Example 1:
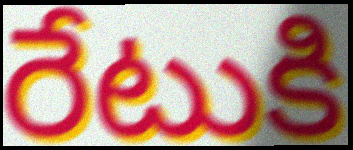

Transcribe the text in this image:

రేటుకి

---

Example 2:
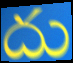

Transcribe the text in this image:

దు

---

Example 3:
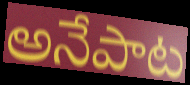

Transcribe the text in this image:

అనేపాట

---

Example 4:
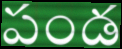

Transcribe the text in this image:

పండ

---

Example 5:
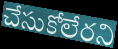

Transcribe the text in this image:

చేసుకోలేరని